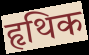
हृथिक